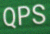
QPS